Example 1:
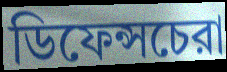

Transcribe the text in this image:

ডিফেন্সচেরা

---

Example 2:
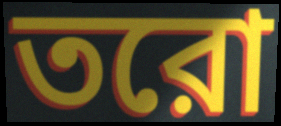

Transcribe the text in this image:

তরো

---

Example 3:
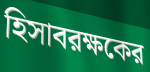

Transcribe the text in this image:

হিসাবরক্ষকের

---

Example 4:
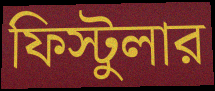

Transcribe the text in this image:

ফিস্টুলার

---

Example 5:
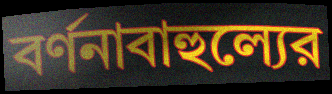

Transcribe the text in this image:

বর্ণনাবাহুল্যের